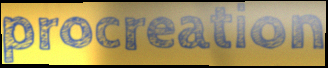
procreation